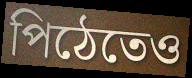
পিঠেতেও